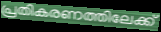
പ്രതികരണത്തിലേക്ക്